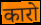
कारो